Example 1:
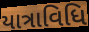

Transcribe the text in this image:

યાત્રાવિધિ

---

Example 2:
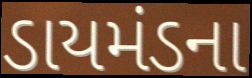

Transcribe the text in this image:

ડાયમંડના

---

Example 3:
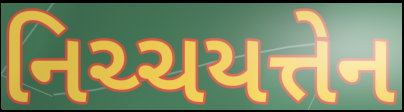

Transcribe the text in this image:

નિચ્ચયત્તેન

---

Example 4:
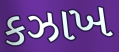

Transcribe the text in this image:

કઝાખ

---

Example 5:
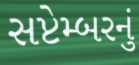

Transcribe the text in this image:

સપ્ટેમ્બરનું